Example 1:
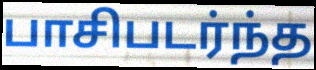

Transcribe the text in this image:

பாசிபடர்ந்த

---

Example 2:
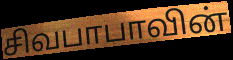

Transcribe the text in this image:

சிவபாபாவின்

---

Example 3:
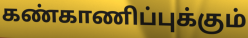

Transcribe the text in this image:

கண்காணிப்புக்கும்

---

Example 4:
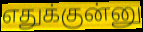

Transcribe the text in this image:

எதுக்குன்னு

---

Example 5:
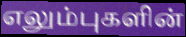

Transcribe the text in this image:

எலும்புகளின்